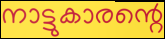
നാട്ടുകാരന്റെ